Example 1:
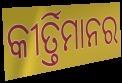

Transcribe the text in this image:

କୀର୍ତ୍ତିମାନର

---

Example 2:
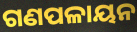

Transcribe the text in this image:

ଗଣପଳାୟନ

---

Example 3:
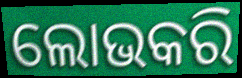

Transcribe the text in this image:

ଲୋଭକରି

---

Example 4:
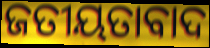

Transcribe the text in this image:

ଜତୀୟତାବାଦ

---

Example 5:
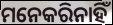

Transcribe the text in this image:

ମନେକରିନାହିଁ